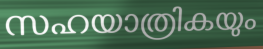
സഹയാത്രികയും